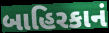
બાહિરકાનં